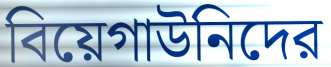
বিয়েগাউনিদের